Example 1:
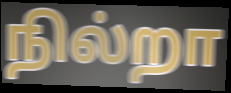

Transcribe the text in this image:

நில்றா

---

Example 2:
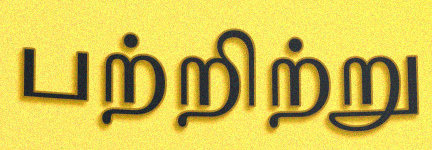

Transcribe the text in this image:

பற்றிற்று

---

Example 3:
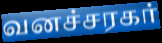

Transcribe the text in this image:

வனச்சரகர்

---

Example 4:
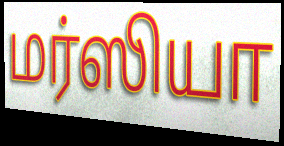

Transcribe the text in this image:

மர்ஸியா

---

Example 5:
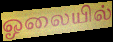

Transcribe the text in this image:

ஓலையில்